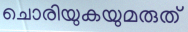
ചൊരിയുകയുമരുത്